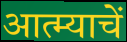
आत्म्याचें